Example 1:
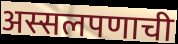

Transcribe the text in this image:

अस्सलपणाची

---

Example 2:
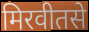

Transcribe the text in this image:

मिरवीतसे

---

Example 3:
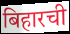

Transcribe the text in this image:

बिहारची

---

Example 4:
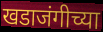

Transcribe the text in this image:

खडाजंगीच्या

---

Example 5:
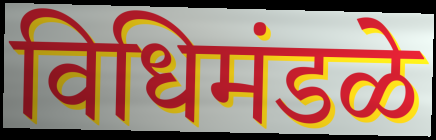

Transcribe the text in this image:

विधिमंडळे